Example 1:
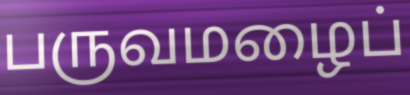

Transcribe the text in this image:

பருவமழைப்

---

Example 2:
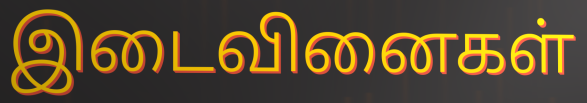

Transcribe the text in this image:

இடைவினைகள்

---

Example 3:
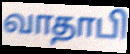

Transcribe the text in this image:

வாதாபி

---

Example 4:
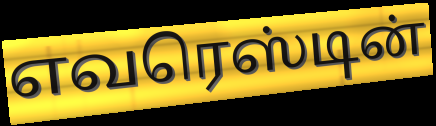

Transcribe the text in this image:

எவரெஸ்டின்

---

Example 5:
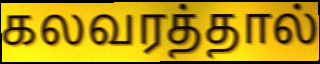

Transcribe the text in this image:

கலவரத்தால்